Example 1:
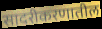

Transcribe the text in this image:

सादरीकरणातील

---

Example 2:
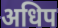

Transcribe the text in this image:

अधिप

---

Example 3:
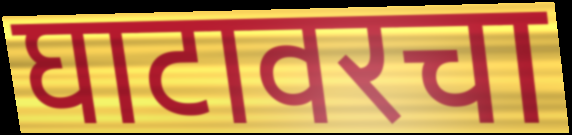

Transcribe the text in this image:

घाटावरचा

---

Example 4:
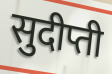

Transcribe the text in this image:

सुदीप्ती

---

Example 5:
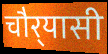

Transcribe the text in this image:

चौर्‍यासी